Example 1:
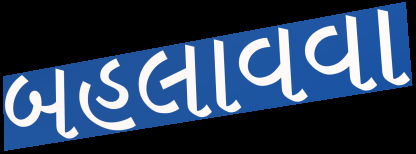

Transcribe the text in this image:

બહલાવવા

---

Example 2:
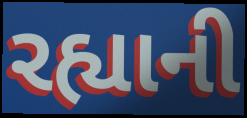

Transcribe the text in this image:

રહ્યાની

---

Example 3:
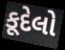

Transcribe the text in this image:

કૂદેલો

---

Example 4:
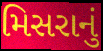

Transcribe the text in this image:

મિસરાનું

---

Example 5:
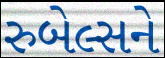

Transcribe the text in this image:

રુબેલ્સને